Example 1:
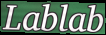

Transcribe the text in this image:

Lablab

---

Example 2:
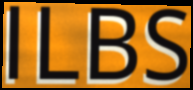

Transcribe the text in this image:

ILBS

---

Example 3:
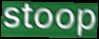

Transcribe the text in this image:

stoop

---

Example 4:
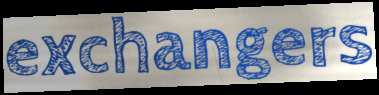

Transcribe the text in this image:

exchangers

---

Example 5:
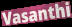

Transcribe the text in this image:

Vasanthi